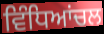
ਵਿੰਧਿਆਂਚਲ